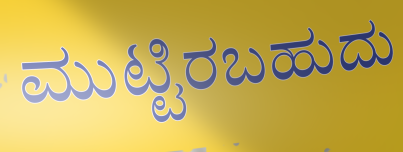
ಮುಟ್ಟಿರಬಹುದು